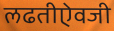
लढतीऐवजी